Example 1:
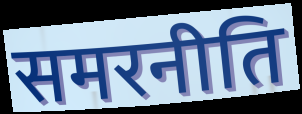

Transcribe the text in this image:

समरनीति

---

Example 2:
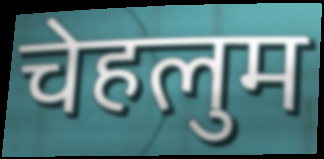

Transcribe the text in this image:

चेहलुम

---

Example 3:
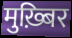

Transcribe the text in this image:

मुख़्बिर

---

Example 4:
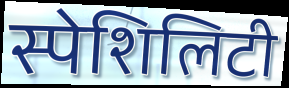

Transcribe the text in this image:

स्पेशिलिटी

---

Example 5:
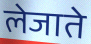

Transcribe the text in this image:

लेजाते